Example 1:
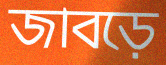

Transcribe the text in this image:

জাবড়ে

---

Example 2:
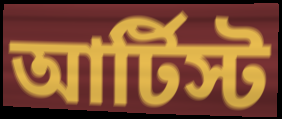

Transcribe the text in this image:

আর্টিস্ট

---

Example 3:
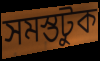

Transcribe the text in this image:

সমস্তটুক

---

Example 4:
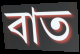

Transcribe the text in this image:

বাত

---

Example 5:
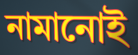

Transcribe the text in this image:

নামানোই